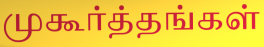
முகூர்த்தங்கள்